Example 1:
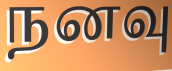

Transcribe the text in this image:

நனவு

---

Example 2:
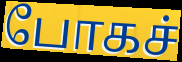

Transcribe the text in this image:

போகச்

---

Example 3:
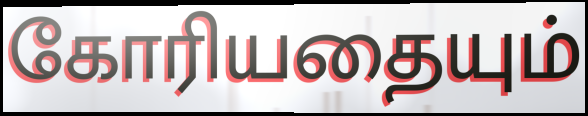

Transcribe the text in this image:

கோரியதையும்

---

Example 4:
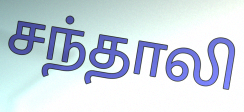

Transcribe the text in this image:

சந்தாலி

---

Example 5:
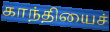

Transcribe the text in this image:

காந்தியைச்